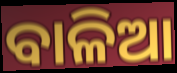
ବାଳିଆ